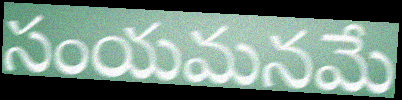
సంయమనమే